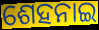
ଶେହନାଇ